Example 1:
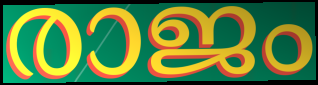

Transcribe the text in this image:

രാജം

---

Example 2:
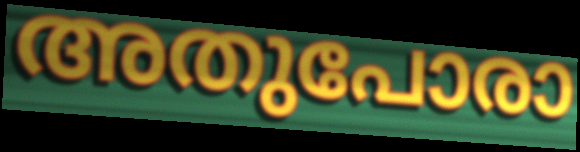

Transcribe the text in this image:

അതുപോരാ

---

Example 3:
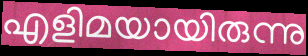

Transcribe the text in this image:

എളിമയായിരുന്നു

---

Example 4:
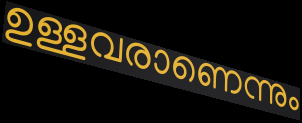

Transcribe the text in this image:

ഉള്ളവരാണെന്നും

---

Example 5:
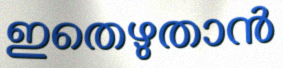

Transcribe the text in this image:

ഇതെഴുതാൻ